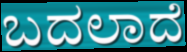
ಬದಲಾದೆ